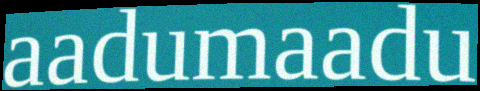
aadumaadu